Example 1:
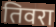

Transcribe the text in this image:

तिवरा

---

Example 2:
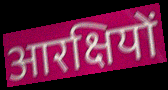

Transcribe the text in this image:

आरक्षियों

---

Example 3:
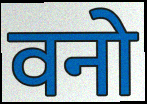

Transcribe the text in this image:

वनो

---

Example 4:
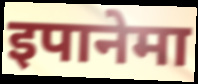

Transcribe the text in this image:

इपानेमा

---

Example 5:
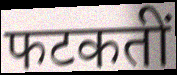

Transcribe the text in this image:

फटकतीं